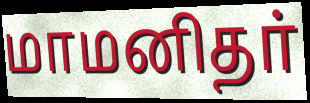
மாமனிதர்